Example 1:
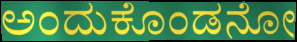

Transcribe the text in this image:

ಅಂದುಕೊಂಡನೋ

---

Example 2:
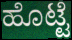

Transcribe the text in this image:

ಹೊಟ್ಟೆ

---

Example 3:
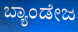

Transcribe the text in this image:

ಬ್ಯಾಂಡೇಜ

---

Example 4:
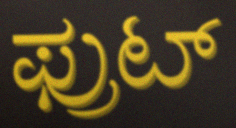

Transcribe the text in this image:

ಫ್ರುಟ್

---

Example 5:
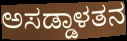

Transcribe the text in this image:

ಅಸಡ್ಡಾಳತನ